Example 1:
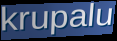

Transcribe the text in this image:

krupalu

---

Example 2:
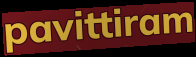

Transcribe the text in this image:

pavittiram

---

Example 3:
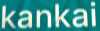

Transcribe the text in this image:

kankai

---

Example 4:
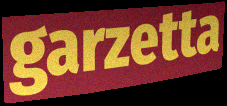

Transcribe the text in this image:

garzetta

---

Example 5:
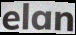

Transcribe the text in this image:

elan